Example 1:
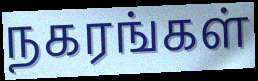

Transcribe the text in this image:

நகரங்கள்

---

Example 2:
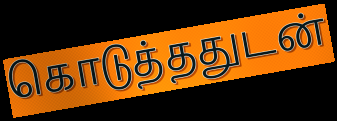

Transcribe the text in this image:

கொடுத்ததுடன்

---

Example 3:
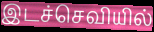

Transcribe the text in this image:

இடச்செவியில்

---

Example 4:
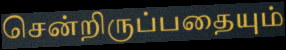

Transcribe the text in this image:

சென்றிருப்பதையும்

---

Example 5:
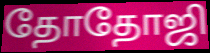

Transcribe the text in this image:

தோதோஜி